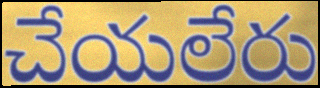
చేయలేరు